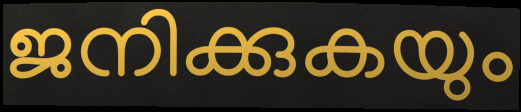
ജനിക്കുകയും